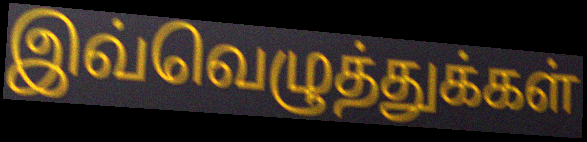
இவ்வெழுத்துக்கள்